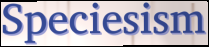
Speciesism